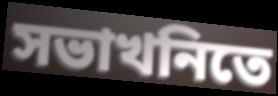
সভাখনিতে